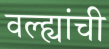
वल्ह्यांची